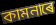
কামনাৰে